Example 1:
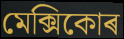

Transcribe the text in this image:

মেক্সিকোৰ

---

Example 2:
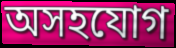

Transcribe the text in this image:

অসহযোগ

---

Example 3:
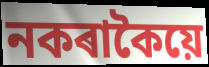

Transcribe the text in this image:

নকৰাকৈয়ে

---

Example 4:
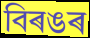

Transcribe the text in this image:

বিৰঙৰ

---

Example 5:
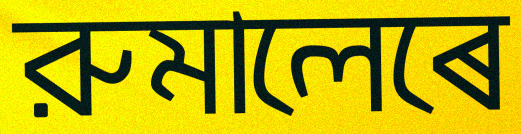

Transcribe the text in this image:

ৰুমালেৰে